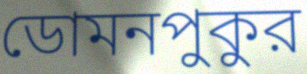
ডোমনপুকুর